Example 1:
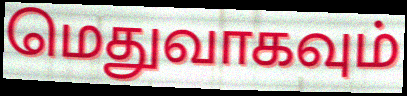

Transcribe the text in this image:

மெதுவாகவும்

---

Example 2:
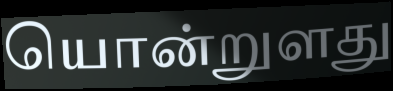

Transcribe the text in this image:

யொன்றுளது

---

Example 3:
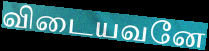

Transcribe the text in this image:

விடையவனே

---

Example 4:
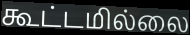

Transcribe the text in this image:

கூட்டமில்லை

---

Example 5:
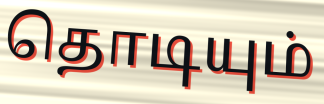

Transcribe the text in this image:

தொடியும்